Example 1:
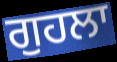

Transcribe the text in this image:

ਗੁਹਲਾ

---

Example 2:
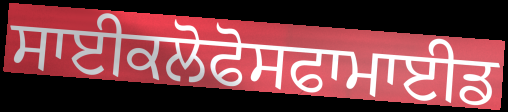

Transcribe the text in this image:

ਸਾਈਕਲੋਫੋਸਫਾਮਾਈਡ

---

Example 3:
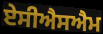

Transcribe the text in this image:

ਏਸੀਐਸਐਮ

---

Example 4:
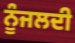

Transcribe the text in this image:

ਨੂੰਜਲਦੀ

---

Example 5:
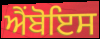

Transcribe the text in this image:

ਐਂਬੋਇਸ